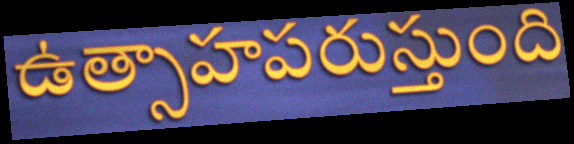
ఉత్సాహపరుస్తుంది